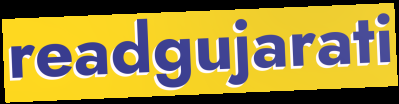
readgujarati